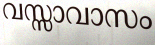
വസ്സാവാസം